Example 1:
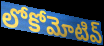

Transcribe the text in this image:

లోకోమోటివ్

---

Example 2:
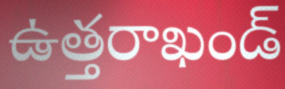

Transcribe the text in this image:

ఉత్తరాఖండ్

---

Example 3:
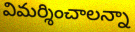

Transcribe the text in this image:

విమర్శించాలన్నా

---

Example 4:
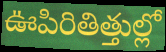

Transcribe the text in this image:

ఊపిరితిత్తుల్లో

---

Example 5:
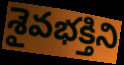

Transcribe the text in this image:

శైవభక్తిని